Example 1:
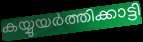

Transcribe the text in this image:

കയ്യുയർത്തിക്കാട്ടി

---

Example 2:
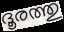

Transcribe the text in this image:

ദൂരത്തു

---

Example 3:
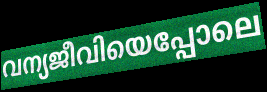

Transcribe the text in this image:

വന്യജീവിയെപ്പോലെ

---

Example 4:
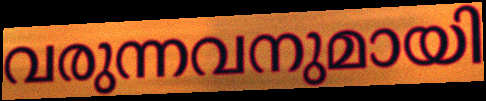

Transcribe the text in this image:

വരുന്നവനുമായി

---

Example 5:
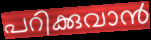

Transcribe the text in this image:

പറിക്കുവാൻ